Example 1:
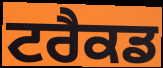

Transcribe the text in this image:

ਟਰੈਕਡ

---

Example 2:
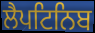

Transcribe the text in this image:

ਲੈਪਟਿਨਿਬ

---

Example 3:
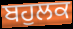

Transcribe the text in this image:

ਬਹੁਲਕ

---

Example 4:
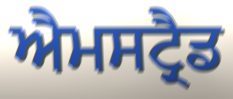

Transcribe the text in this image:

ਐਮਸਟ੍ਰੈਡ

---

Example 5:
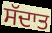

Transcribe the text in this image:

ਸੱਦਾਤ